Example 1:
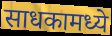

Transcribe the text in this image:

साधकामध्ये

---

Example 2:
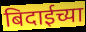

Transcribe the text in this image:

बिदाईच्या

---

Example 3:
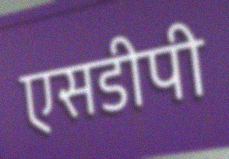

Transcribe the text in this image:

एसडीपी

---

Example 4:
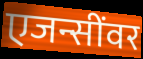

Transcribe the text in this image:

एजन्सींवर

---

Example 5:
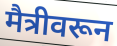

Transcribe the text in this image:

मैत्रीवरून